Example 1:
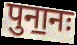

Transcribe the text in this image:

पुना॒नः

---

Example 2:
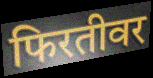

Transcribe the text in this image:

फिरतीवर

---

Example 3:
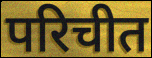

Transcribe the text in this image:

परिचीत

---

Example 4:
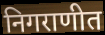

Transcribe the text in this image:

निगराणीत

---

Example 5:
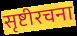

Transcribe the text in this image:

सृष्टीरचना